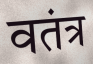
वतंत्र